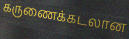
கருணைக்கடலான